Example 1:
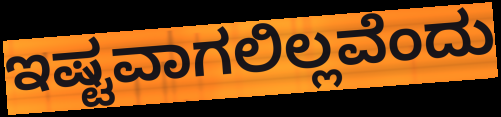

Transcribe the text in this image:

ಇಷ್ಟವಾಗಲಿಲ್ಲವೆಂದು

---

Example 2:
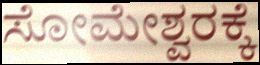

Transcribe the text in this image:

ಸೋಮೇಶ್ವರಕ್ಕೆ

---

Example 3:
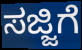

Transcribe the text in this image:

ಸಜ್ಜಿಗೆ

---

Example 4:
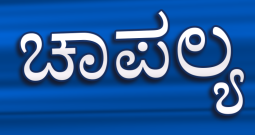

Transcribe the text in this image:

ಚಾಪಲ್ಯ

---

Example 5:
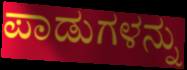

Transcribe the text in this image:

ಪಾಡುಗಳನ್ನು